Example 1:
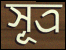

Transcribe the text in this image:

সূত্র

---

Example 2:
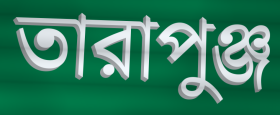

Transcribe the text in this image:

তারাপুঞ্জ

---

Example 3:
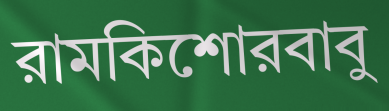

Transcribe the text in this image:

রামকিশোরবাবু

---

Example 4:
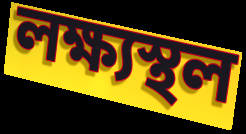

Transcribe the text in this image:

লক্ষ্যস্থল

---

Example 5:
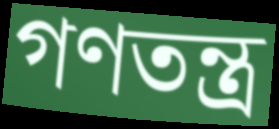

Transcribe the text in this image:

গণতন্ত্র